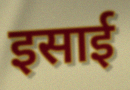
इसाई